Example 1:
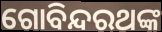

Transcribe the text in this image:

ଗୋବିନ୍ଦରଥଙ୍କ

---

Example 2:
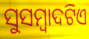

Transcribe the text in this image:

ସୁସମ୍ବାଦଟିଏ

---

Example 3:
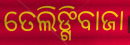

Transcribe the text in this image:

ତେଲିଙ୍ଗିବାଜା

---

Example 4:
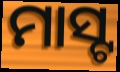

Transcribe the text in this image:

ମାସ୍ଟ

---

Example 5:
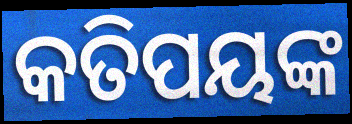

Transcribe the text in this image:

କତିପୟଙ୍କ